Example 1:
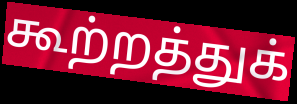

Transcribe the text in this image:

கூற்றத்துக்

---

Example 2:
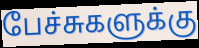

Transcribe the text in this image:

பேச்சுகளுக்கு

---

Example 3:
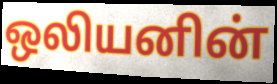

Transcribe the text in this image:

ஒலியனின்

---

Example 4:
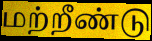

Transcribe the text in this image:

மற்றீண்டு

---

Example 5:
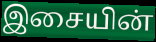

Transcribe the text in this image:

இசையின்